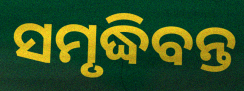
ସମୃଦ୍ଧିବନ୍ତ